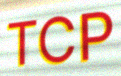
TCP